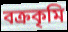
বক্রকৃমি